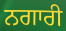
ਨਗਾਰੀ